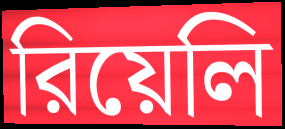
রিয়েলি